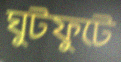
ঘুটফুটে